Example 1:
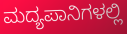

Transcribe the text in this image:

ಮದ್ಯಪಾನಿಗಳಲ್ಲಿ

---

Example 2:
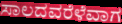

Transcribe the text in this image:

ಸಾಲದವರೆಳೆವಾಗ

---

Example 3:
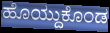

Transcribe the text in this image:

ಹೊಯ್ದುಕೊಂಡ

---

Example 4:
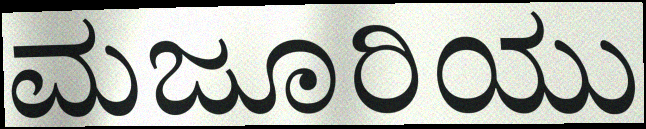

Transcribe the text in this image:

ಮಜೂರಿಯು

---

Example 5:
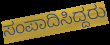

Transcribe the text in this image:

ಸಂಪಾದಿಸಿದ್ದರು